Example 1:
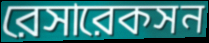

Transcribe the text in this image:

রেসারেকসন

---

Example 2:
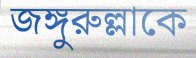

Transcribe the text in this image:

জঙ্গুরুল্লাকে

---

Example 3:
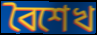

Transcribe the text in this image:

বৈশেখ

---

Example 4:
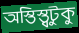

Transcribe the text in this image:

অস্তিস্ত্বটুকু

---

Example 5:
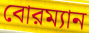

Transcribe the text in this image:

বোরম্যান